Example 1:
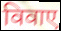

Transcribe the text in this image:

विवाए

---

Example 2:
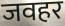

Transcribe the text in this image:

जवहर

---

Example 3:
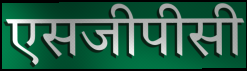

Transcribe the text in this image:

एसजीपीसी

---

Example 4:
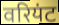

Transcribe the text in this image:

वरियंट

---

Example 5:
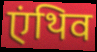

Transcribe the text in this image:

एंथिव